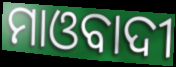
ମାଓବାଦୀ